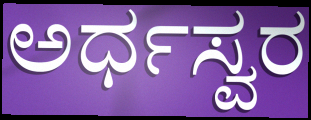
ಅರ್ಧಸ್ವರ